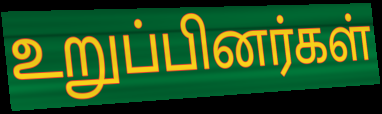
உறுப்பினர்கள்